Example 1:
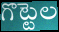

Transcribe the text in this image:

గొట్టెల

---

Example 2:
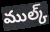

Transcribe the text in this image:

ముల్క్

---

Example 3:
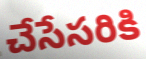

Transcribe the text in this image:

చేసేసరికి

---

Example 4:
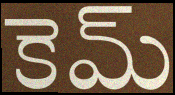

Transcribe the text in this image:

కెమ్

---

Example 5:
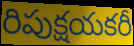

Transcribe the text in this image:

రిపుక్షయకరీ